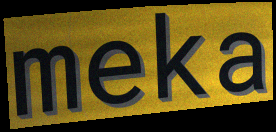
meka